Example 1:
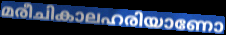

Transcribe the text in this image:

മരീചികാലഹരിയാണോ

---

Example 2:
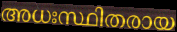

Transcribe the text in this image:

അധഃസ്ഥിതരായ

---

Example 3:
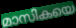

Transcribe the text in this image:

മാസികയെ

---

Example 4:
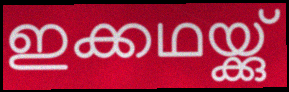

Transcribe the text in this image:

ഇക്കഥയ്ക്കു്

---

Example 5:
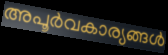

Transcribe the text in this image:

അപൂർവകാര്യങ്ങൾ